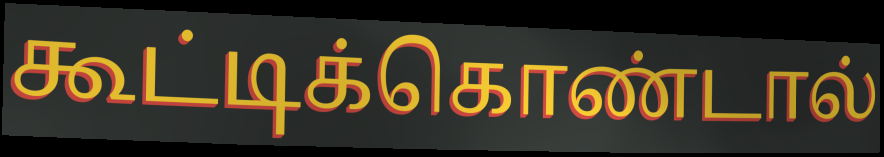
கூட்டிக்கொண்டால்